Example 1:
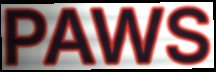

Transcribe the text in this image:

PAWS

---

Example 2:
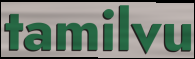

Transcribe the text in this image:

tamilvu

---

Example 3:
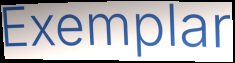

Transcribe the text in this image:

Exemplar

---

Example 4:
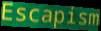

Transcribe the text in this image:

Escapism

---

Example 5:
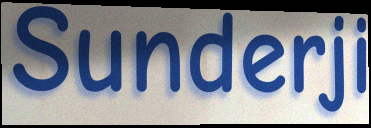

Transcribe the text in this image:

Sunderji